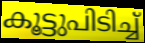
കൂട്ടുപിടിച്ച്